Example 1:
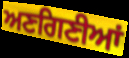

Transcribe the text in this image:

ਅਣਗਿਣੀਆਂ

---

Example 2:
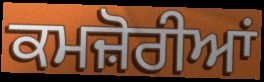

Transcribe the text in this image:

ਕਮਜ਼ੋਰੀਆਂ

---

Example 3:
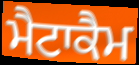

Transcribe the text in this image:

ਮੈਟਾਕੈਮ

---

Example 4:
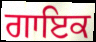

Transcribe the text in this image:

ਗਾਇਕ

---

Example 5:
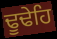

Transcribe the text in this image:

ਢੂਢੇਹਿ